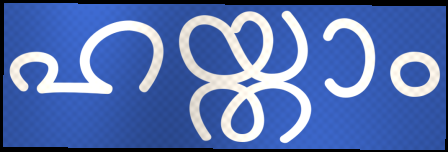
ഹയ്താം